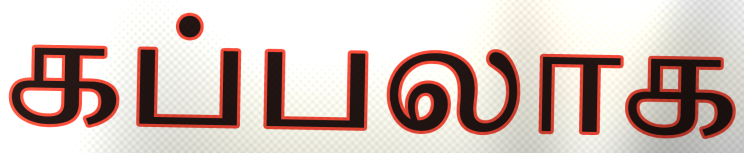
கப்பலாக